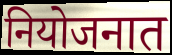
नियोजनात